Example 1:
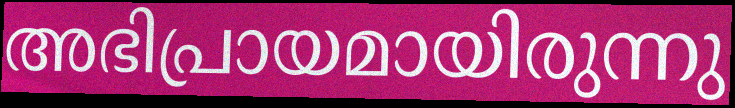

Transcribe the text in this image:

അഭിപ്രായമായിരുന്നു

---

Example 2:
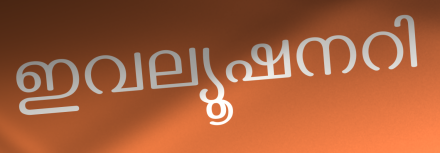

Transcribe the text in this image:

ഇവല്യൂഷനറി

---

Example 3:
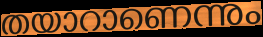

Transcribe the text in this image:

തയാറാണെന്നും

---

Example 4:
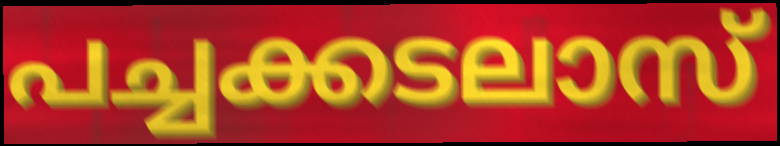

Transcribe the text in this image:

പച്ചക്കടലാസ്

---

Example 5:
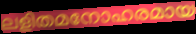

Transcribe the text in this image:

ലളിതമനോഹരമായ